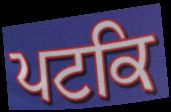
ਪਟਕਿ